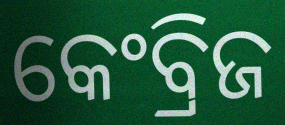
କେଂବ୍ରିଜ